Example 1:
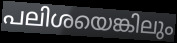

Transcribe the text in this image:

പലിശയെങ്കിലും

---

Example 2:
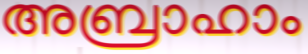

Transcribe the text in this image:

അബ്രാഹാം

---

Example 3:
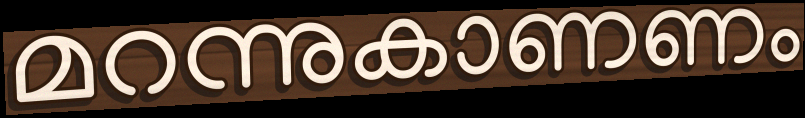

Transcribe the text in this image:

മറന്നുകാണണം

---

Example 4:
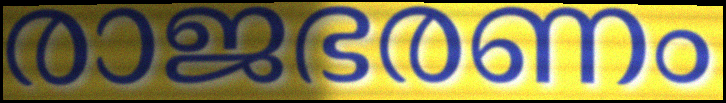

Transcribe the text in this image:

രാജഭരണം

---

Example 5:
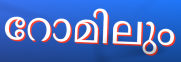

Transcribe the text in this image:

റോമിലും